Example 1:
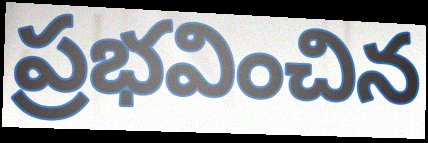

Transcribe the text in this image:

ప్రభవించిన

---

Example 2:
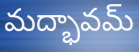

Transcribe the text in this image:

మద్భావమ్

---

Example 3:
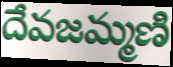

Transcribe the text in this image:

దేవజమ్మణి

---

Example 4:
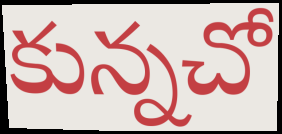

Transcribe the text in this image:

కున్నచో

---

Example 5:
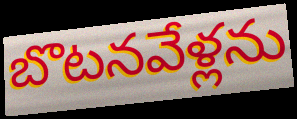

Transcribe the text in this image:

బొటనవేళ్లను